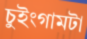
চুইংগামটা